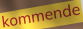
kommende